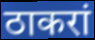
ठाकरां